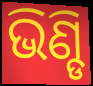
ଭିଣ୍ଡି